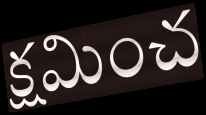
క్షమించ